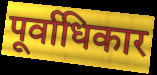
पूर्वाधिकार